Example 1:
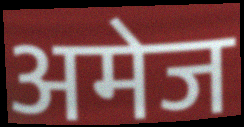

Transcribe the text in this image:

अमेज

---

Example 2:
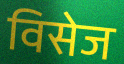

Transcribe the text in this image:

विसेज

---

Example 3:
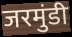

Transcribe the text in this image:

जरमुंडी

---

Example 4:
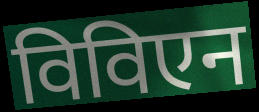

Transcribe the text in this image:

विविएन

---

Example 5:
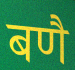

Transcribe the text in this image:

बणै